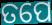
ତପେ